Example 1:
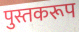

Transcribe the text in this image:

पुस्तकरूप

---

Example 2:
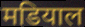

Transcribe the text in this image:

मडियाल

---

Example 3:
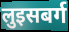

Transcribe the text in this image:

लुइसबर्ग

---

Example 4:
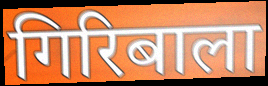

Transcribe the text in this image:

गिरिबाला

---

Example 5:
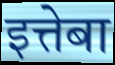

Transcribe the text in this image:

इत्तेबा